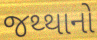
જથ્થાનો